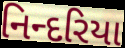
નિન્દરિયા